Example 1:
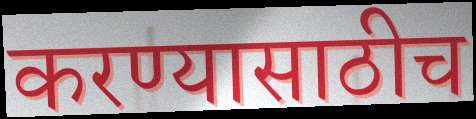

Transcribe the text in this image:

करण्यासाठीच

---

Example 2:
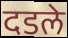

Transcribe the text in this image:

दडले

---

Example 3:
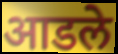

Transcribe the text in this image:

आडले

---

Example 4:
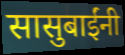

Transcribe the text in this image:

सासुबाईंनी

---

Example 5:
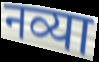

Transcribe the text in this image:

नव्या